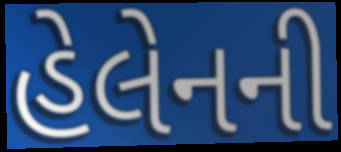
હેલેનની